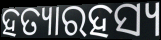
ହତ୍ୟାରହସ୍ୟ